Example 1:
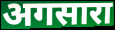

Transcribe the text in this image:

अगसारा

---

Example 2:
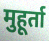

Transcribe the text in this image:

मुहूर्ता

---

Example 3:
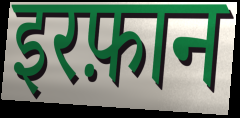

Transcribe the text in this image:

इरफ़ान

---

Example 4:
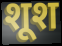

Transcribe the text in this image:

शूश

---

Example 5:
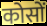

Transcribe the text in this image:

कोसों